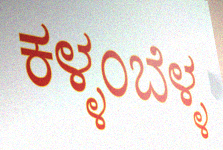
ಕಳ್ಳಂಬೆಳ್ಳ